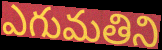
ఎగుమతిని